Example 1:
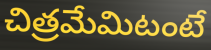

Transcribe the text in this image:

చిత్రమేమిటంటే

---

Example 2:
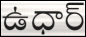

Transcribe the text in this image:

ఉధార్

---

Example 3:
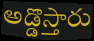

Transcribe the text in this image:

అడ్డొస్తారు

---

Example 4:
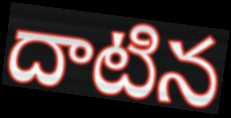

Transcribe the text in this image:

దాటిన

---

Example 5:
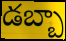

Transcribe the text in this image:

డబ్బా